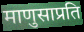
माणुसाप्रति